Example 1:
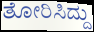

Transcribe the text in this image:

ತೋರಿಸಿದ್ದು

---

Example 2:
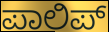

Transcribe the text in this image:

ಪಾಲಿಪ್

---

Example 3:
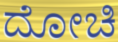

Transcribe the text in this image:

ದೋಚಿ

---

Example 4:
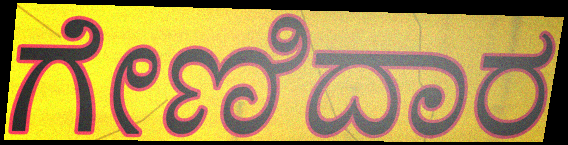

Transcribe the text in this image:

ಗೇಣಿದಾರ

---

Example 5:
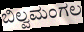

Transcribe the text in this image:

ಬಿಲ್ವಮಂಗಲ